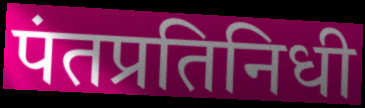
पंतप्रतिनिधी